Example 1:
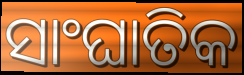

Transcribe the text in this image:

ସାଂଘାତିକ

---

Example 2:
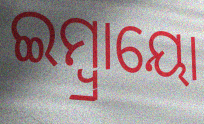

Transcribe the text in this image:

ଇମ୍ବ୍ରାୟୋ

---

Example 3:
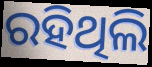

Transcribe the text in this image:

ରହିଥିଲି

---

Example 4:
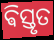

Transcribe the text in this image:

ଵିସ୍ତୃତ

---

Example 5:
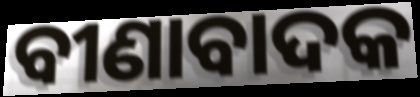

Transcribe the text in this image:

ବୀଣାବାଦକ